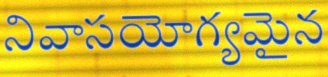
నివాసయోగ్యమైన